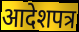
आदेशपत्र